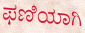
ಫಣಿಯಾಗಿ